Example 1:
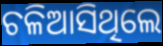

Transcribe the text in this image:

ଚଳିଆସିଥିଲେ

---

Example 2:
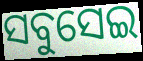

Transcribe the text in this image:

ସବୁସେଇ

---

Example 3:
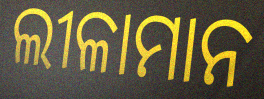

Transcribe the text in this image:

ଲୀଳାମାନ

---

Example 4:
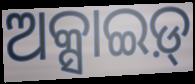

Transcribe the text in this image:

ଅକ୍ସାଇଡ଼୍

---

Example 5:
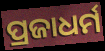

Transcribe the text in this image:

ପ୍ରଜାଧର୍ମ